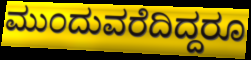
ಮುಂದುವರೆದಿದ್ದರೂ